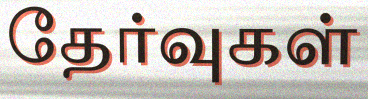
தேர்வுகள்